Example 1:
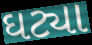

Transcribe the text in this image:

ઘટ્યા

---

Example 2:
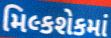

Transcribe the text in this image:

મિલ્કશેકમાં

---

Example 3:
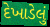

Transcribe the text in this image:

દેખાડેલું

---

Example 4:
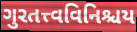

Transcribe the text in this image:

ગુરતત્ત્વવિનિશ્ચય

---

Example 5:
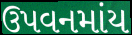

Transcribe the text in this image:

ઉપવનમાંય